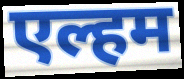
एल्हम